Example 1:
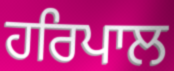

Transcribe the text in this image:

ਹਰਿਪਾਲ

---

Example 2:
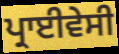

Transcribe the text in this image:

ਪ੍ਰਾਈਵੇਸੀ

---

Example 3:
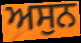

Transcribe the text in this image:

ਅਸੁਨ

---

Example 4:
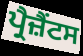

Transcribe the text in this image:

ਪ੍ਰੈਜ਼ੈਂਟਸ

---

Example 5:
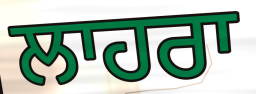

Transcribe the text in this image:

ਲਾਹਰਾ